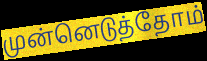
முன்னெடுத்தோம்